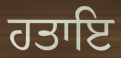
ਹਤਾਇ